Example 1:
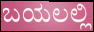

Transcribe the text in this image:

ಬಯಲಲ್ಲಿ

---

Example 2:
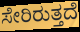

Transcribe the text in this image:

ಸೇರಿರುತ್ತದೆ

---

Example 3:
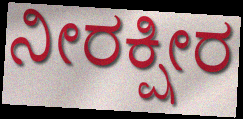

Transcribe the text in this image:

ನೀರಕ್ಷೀರ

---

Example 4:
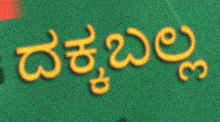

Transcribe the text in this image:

ದಕ್ಕಬಲ್ಲ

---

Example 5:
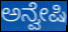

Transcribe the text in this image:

ಅನ್ವೇಷಿ